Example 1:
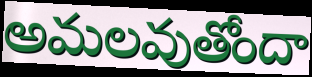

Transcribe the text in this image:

అమలవుతోందా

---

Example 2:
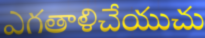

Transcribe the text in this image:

ఎగతాళిచేయుచు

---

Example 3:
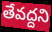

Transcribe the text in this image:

తేవద్దని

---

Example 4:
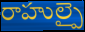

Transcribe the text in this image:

రాహుల్పై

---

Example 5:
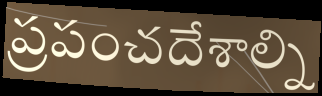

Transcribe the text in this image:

ప్రపంచదేశాల్ని